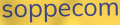
soppecom